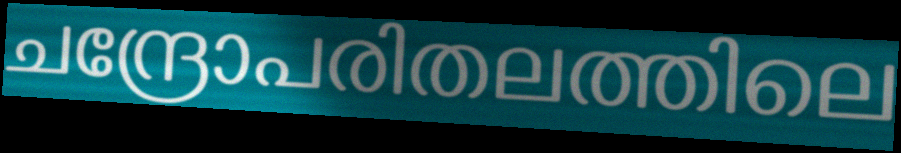
ചന്ദ്രോപരിതലത്തിലെ